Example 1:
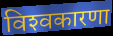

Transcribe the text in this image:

विश्वकारणा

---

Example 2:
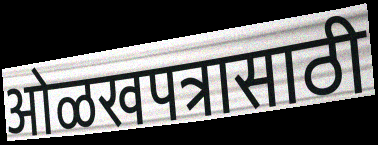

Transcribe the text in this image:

ओळखपत्रासाठी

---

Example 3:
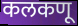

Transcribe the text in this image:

कलकणू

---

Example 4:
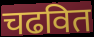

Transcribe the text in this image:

चढवित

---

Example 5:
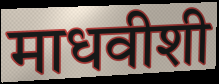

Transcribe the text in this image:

माधवीशी